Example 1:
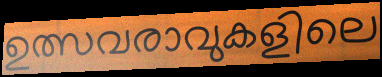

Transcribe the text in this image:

ഉത്സവരാവുകളിലെ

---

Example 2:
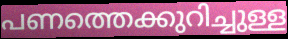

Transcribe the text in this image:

പണത്തെക്കുറിച്ചുള്ള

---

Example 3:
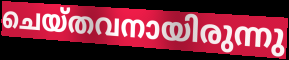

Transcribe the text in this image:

ചെയ്തവനായിരുന്നു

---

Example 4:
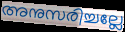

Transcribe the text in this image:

അനുസരിച്ചല്ലേ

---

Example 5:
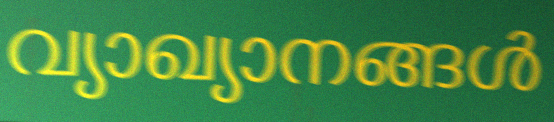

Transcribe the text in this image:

വ്യാഖ്യാനങ്ങൾ